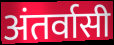
अंतर्वासी